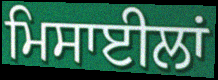
ਮਿਸਾਈਲਾਂ